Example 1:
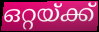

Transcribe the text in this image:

ഒറ്റയ്ക്ക്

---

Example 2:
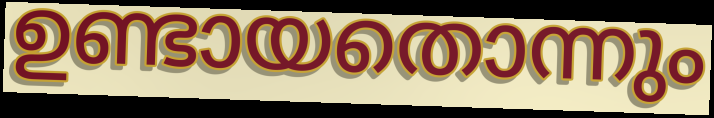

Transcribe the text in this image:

ഉണ്ടായതൊന്നും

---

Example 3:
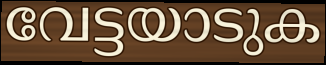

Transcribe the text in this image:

വേട്ടയാടുക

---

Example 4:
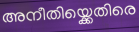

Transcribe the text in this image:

അനീതിയ്ക്കെതിരെ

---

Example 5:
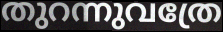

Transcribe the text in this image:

തുറന്നുവത്രേ